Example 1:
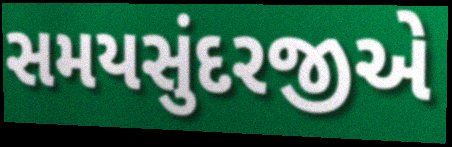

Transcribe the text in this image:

સમયસુંદરજીએ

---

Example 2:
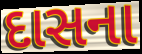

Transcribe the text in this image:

દાસના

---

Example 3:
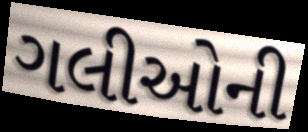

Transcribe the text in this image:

ગલીઓની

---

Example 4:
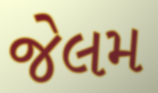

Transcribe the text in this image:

જેલમ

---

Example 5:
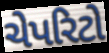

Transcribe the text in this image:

ચેપરિટો